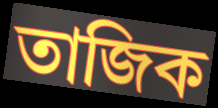
তাজিক